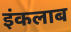
इंकलाब